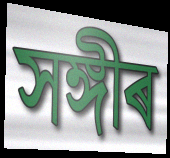
সঙ্গীৰ